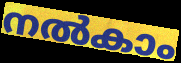
നൽകാം